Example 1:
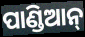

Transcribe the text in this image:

ପାଣ୍ଡିଆନ୍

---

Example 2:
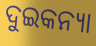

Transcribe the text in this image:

ଦୁଇକନ୍ୟା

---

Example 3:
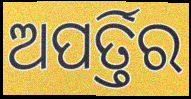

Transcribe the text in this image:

ଅପର୍ତ୍ତିର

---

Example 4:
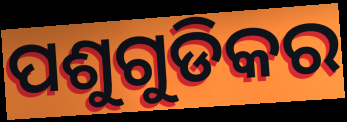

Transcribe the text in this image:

ପଶୁଗୁଡିକର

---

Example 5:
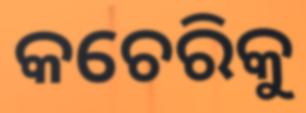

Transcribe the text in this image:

କଚେରିକୁ